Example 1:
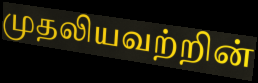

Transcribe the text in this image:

முதலியவற்றின்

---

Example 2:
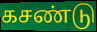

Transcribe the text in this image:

கசண்டு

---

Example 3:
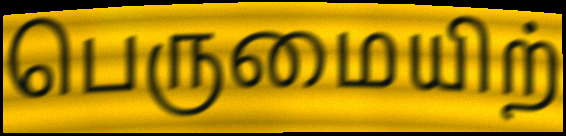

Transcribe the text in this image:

பெருமையிற்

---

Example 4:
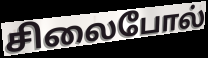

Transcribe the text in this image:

சிலைபோல்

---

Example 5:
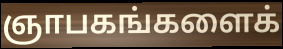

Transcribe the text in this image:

ஞாபகங்களைக்